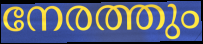
നേരത്തും